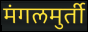
मंगलमुर्ती